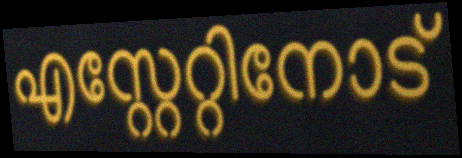
എസ്റ്റേറ്റിനോട്